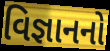
વિજ્ઞાનનો